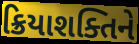
ક્રિયાશક્તિને